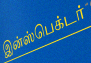
இன்ஸ்பெக்டர்